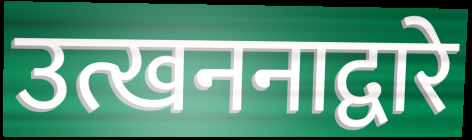
उत्खननाद्वारे